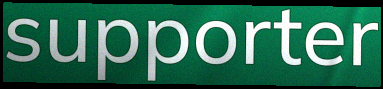
supporter